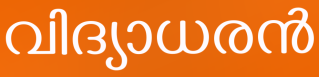
വിദ്യാധരൻ